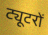
ट्यूटरों